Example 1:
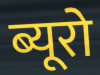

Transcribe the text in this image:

ब्यूरो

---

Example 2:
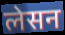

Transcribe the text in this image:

लेसन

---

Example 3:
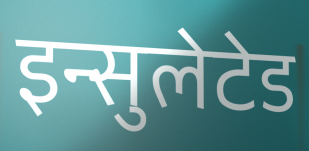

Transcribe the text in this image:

इन्सुलेटेड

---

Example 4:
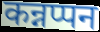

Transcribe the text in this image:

कन्नप्पन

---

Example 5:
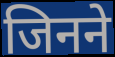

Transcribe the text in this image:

जिनने